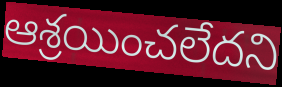
ఆశ్రయించలేదని